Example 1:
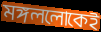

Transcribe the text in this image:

মঙ্গললোকেই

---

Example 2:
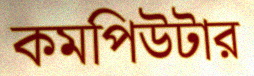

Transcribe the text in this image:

কমপিউটার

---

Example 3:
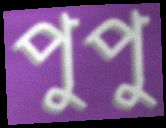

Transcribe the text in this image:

পুপু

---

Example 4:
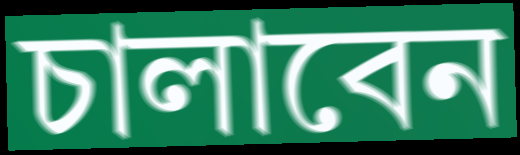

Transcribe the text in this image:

চালাবেন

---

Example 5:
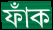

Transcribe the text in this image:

ফাঁক